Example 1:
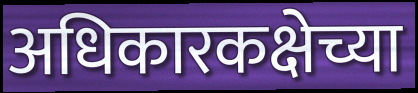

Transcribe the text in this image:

अधिकारकक्षेच्या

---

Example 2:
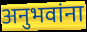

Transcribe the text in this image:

अनुभवांना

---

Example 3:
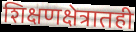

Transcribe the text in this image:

शिक्षणक्षेत्रातही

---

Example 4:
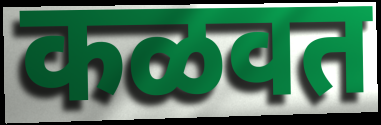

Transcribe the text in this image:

कळवत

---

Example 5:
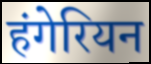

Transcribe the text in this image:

हंगेरियन